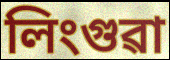
লিংগুৱা